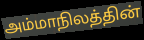
அம்மாநிலத்தின்